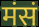
मंसं